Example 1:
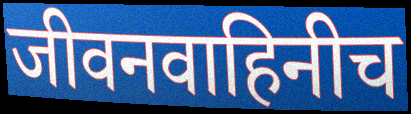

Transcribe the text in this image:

जीवनवाहिनीच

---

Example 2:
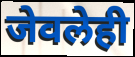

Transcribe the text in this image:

जेवलेही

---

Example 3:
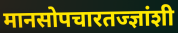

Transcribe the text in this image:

मानसोपचारतज्ज्ञांशी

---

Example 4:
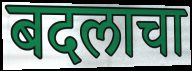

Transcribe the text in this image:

बदलाचा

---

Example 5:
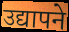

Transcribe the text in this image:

उद्यापने